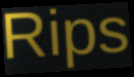
Rips